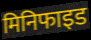
मिनिफाइड